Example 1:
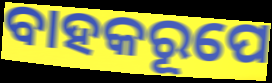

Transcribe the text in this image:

ବାହକରୂପେ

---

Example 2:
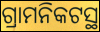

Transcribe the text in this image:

ଗ୍ରାମନିକଟସ୍ଥ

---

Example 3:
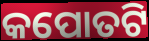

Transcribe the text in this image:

କପୋତଟି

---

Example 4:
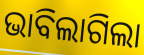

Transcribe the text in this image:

ଭାବିଲାଗିଲା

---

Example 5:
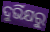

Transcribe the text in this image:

ଦୁର୍ଭିକ୍ଷରୁ